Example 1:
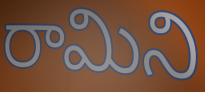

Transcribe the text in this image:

రామిని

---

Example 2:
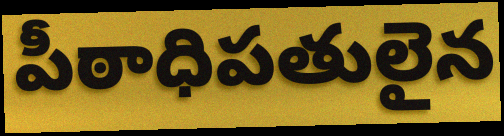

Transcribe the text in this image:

పీఠాధిపతులైన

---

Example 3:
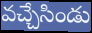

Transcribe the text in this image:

వచ్చేసిండు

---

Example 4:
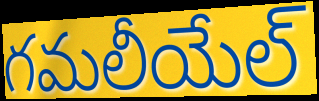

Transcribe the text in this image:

గమలీయేల్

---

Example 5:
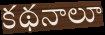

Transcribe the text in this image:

కథనాలూ